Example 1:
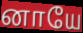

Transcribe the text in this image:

னாயே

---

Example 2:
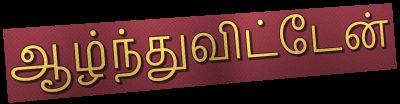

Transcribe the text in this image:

ஆழ்ந்துவிட்டேன்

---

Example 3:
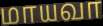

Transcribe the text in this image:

மாயவா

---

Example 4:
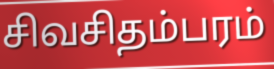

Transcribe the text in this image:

சிவசிதம்பரம்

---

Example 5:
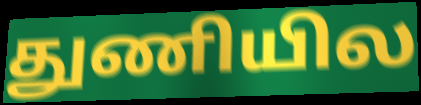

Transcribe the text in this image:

துணியில